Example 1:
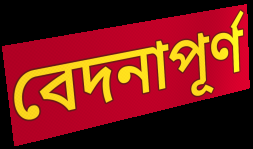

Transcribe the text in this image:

বেদনাপূর্ণ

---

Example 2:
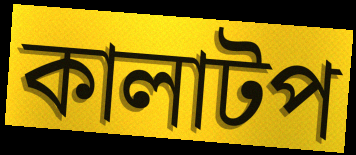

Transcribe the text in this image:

কালাটপ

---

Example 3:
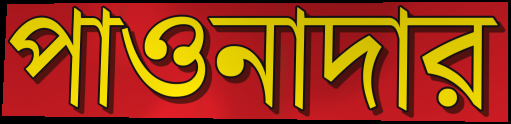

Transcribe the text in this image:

পাওনাদার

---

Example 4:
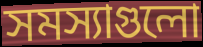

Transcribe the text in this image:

সমস্যাগুলো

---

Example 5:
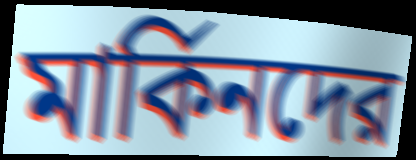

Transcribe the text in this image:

মার্কিনদের